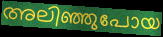
അലിഞ്ഞുപോയ